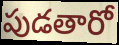
పుడతారో